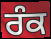
ਰੰਕ